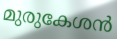
മുരുകേശൻ